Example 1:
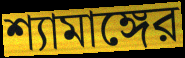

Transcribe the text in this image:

শ্যামাঙ্গের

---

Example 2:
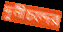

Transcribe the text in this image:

দুনীচন্দের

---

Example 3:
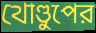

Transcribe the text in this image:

থোণ্ডুপের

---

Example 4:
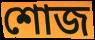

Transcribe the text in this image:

শোজ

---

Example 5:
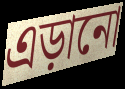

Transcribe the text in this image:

এড়ানো